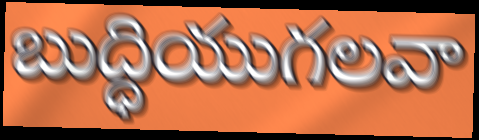
బుద్ధియుగలవా